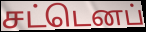
சட்டெனப்